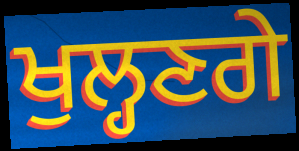
ਖੁਲ੍ਹਣਗੇ